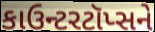
કાઉન્ટરટૉપ્સને